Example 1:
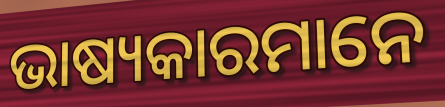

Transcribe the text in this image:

ଭାଷ୍ୟକାରମାନେ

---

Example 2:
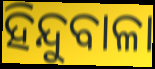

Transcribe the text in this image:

ହିନ୍ଦୁବାଳା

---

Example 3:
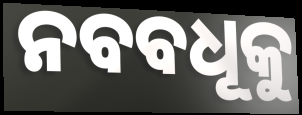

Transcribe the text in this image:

ନବବଧୂକୁ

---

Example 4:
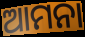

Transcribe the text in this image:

ଆମନା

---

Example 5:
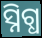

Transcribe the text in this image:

ସ୍ନିଗ୍ଧ